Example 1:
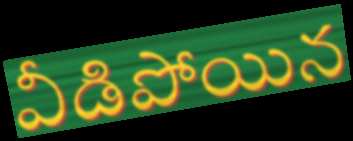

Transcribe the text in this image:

వీడిపోయిన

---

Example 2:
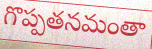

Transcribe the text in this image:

గొప్పతనమంతా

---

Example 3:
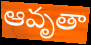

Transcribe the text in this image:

ఆవృతా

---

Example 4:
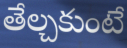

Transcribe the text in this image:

తేల్చకుంటే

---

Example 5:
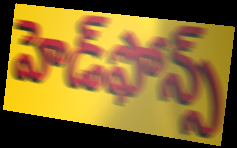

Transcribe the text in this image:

హెడ్‌ఫోన్స్